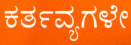
ಕರ್ತವ್ಯಗಳೇ